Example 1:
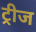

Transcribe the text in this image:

ट्रीज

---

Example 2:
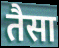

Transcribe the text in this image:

तैसा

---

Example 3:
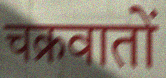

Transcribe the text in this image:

चक्रवातों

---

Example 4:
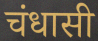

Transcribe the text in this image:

चंधासी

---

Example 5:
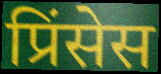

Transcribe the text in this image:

प्रिंसेस